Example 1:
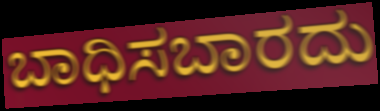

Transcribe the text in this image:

ಬಾಧಿಸಬಾರದು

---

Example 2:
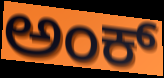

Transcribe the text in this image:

ಅಂಕ್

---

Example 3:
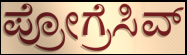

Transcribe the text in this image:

ಪ್ರೋಗ್ರೆಸಿವ್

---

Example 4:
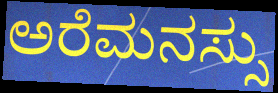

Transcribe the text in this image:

ಅರೆಮನಸ್ಸು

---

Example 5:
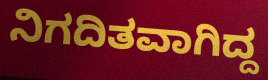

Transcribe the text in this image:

ನಿಗದಿತವಾಗಿದ್ದ